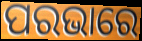
ପରଭାରେ